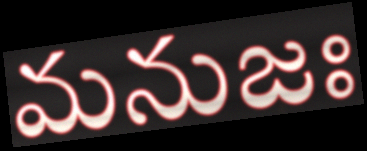
మనుజః